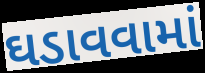
ઘડાવવામાં